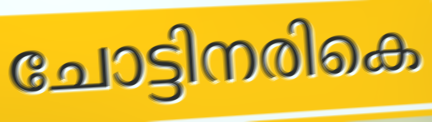
ചോട്ടിനരികെ